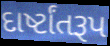
દાર્ષ્ટાંતરૂપ